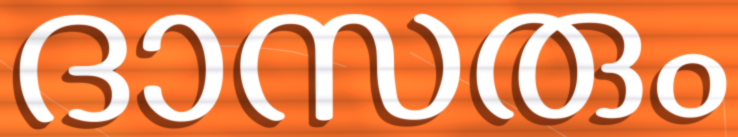
ദാസരും